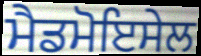
ਮੈਡਮੋਇਸੇਲ